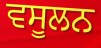
ਵਸੂਲਨ